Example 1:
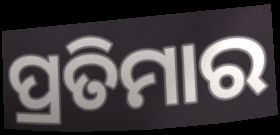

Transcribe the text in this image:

ପ୍ରତିମାର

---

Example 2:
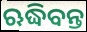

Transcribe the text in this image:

ଋଦ୍ଧିବନ୍ତ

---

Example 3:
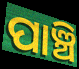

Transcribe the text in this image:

ପାଞ୍ଚି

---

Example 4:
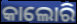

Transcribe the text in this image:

କାଲୋରି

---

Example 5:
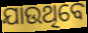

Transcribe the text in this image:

ଯାଉଥିବେ